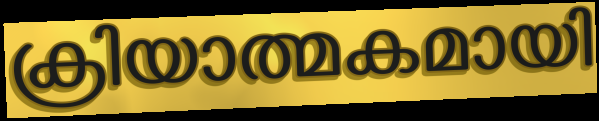
ക്രിയാത്മകമായി